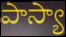
పాస్యా